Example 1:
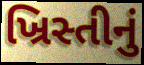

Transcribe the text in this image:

ખ્રિસ્તીનું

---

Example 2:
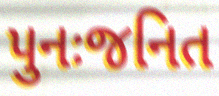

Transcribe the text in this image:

પુનઃજનિત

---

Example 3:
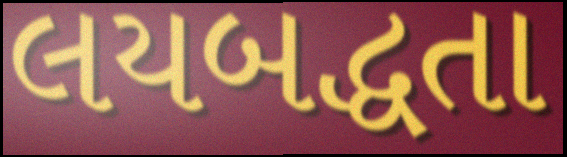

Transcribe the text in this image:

લયબદ્ધતા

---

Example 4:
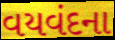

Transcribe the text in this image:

વયવંદના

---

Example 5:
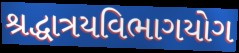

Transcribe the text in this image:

શ્રદ્ધાત્રયવિભાગયોગ